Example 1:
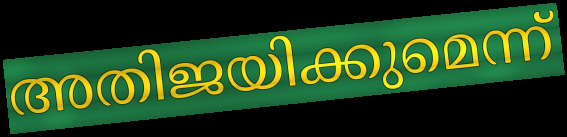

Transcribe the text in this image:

അതിജയിക്കുമെന്ന്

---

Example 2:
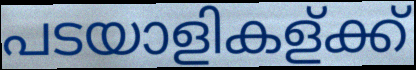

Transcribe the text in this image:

പടയാളികള്ക്ക്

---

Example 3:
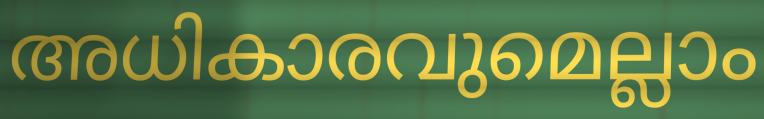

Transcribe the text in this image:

അധികാരവുമെല്ലാം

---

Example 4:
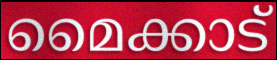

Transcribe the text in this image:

മൈക്കാട്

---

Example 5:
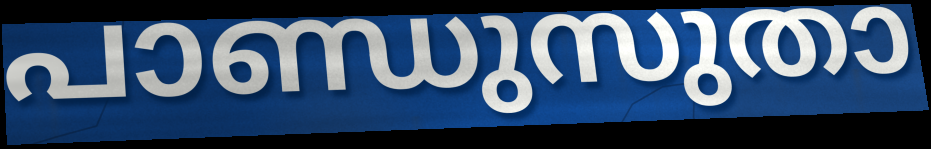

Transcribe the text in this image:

പാണ്ഡുസുതാ